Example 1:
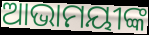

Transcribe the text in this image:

ଆଭାମୟୀଙ୍କ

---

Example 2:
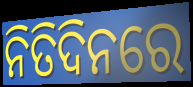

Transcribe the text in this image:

ନିତିଦିନରେ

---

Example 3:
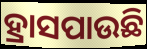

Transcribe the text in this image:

ହ୍ରାସପାଉଛି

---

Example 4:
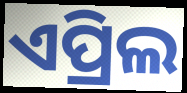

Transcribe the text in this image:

ଏପ୍ରିଲ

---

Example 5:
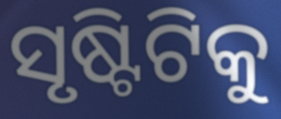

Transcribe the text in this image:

ସୃଷ୍ଟିଟିକୁ